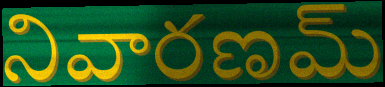
నివారణమ్